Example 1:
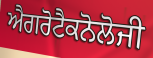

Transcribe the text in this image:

ਐਗਰੋਟੈਕਨੋਲੋਜੀ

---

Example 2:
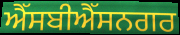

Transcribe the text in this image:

ਐੱਸਬੀਐੱਸਨਗਰ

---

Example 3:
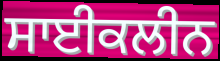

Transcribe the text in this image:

ਸਾਈਕਲੀਨ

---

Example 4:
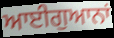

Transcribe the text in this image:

ਆਈਗੁਆਨਾਂ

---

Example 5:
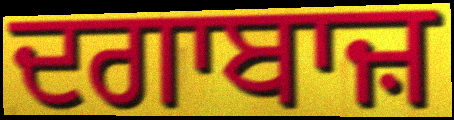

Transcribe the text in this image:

ਦਗਾਬਾਜ਼